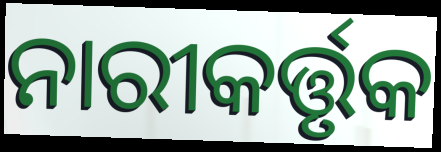
ନାରୀକର୍ତ୍ତୃକ